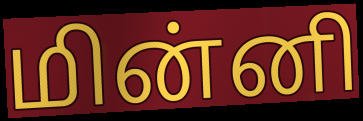
மின்னி